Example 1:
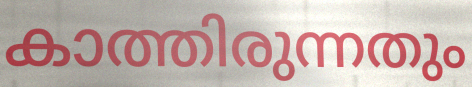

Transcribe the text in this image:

കാത്തിരുന്നതും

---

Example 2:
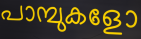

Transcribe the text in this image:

പാമ്പുകളോ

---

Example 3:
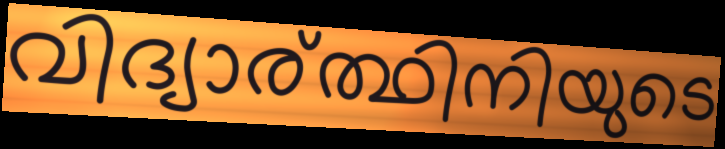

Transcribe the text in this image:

വിദ്യാര്ത്ഥിനിയുടെ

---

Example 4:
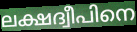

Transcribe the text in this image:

ലക്ഷദ്വീപിനെ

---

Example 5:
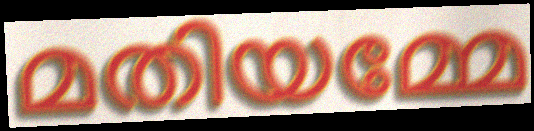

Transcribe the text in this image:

മതിയമ്മേ